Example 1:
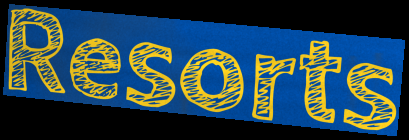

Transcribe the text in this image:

Resorts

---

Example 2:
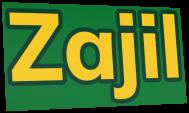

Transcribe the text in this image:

Zajil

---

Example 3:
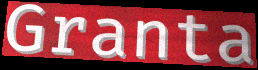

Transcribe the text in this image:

Granta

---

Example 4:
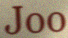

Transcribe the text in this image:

Joo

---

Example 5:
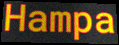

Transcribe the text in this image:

Hampa